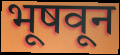
भूषवून